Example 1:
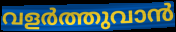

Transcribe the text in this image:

വളർത്തുവാൻ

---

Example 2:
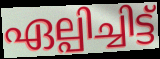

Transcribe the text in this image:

ഏല്പിച്ചിട്ട്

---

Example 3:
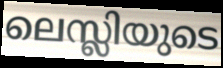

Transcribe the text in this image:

ലെസ്ലിയുടെ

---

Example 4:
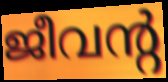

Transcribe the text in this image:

ജീവന്റ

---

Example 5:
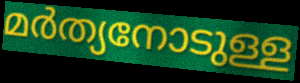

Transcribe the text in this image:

മർത്യനോടുള്ള